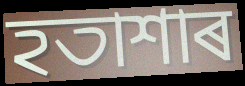
হতাশাৰ